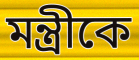
মন্ত্রীকে